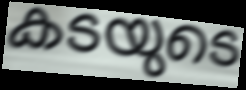
കടയുടെ